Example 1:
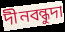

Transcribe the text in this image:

দীনবন্ধুদা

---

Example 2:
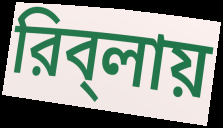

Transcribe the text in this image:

রিব্‌লায়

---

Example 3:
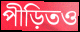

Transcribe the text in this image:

পীড়িতও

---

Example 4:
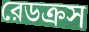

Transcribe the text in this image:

রেডক্রস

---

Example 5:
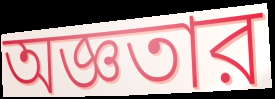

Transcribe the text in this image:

অজ্ঞতার